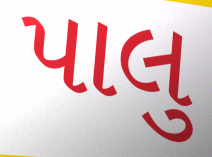
પાલુ